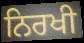
ਨਿਰਖੀ